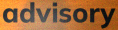
advisory